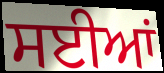
ਸਈਆਂ